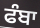
ਫੰਬਾ